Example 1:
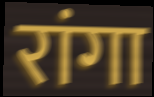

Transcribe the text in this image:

रांगा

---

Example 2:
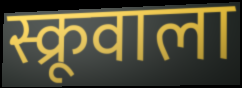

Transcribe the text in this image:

स्क्रूवाला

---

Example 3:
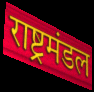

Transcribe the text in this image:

राष्ट्रमंडल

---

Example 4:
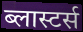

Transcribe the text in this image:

ब्लास्टर्स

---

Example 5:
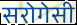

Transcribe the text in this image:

सरोगेसी